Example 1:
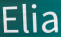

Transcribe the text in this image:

Elia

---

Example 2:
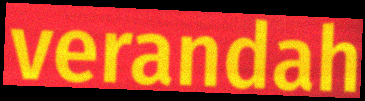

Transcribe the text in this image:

verandah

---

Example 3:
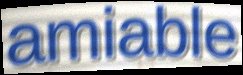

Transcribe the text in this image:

amiable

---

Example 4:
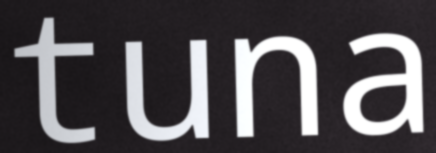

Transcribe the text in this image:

tuna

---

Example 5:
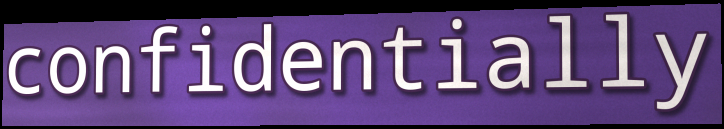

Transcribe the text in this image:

confidentially